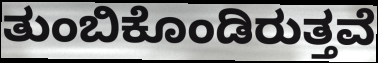
ತುಂಬಿಕೊಂಡಿರುತ್ತವೆ